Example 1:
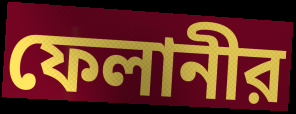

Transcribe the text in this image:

ফেলানীর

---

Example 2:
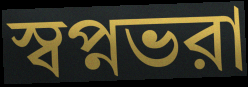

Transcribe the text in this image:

স্বপ্নভরা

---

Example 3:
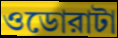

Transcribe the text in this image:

ওডোরাটা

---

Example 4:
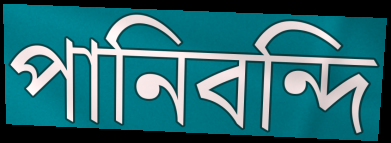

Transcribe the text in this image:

পানিবন্দি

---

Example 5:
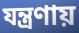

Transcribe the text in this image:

যন্ত্রণায়